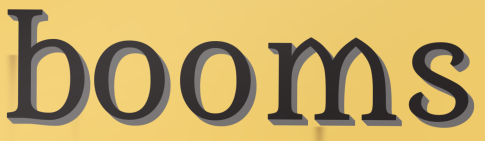
booms